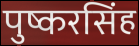
पुष्करसिंह